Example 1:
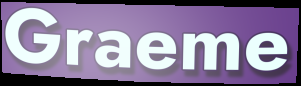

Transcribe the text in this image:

Graeme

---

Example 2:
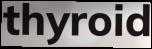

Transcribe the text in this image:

thyroid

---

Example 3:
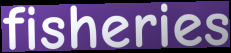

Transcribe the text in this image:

fisheries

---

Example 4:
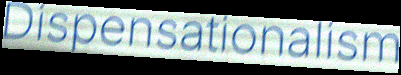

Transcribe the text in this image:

Dispensationalism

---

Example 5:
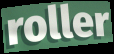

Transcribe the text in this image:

roller